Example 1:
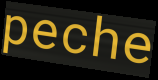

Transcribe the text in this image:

peche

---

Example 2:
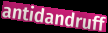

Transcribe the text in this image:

antidandruff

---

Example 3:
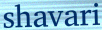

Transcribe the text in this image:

shavari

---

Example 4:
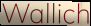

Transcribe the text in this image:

Wallich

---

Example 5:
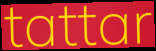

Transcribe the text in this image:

tattar